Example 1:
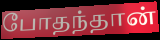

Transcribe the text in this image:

போதந்தான்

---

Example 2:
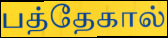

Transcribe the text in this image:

பத்தேகால்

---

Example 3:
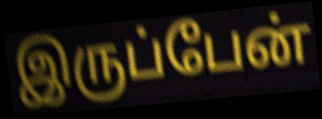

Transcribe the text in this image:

இருப்பேன்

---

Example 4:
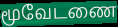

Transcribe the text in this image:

மூவேடணை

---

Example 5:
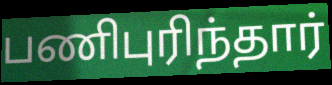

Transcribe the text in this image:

பணிபுரிந்தார்